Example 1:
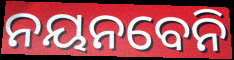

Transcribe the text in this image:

ନୟନବେନି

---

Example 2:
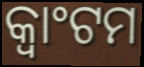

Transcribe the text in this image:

କ୍ୱାଂଟମ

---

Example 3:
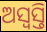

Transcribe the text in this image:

ଅସ୍ୱସ୍ତି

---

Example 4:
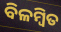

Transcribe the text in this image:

ବିଳମ୍ବିତ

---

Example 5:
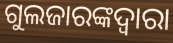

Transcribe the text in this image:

ଗୁଲଜାରଙ୍କଦ୍ୱାରା